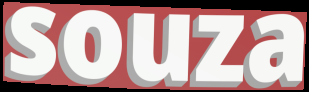
souza